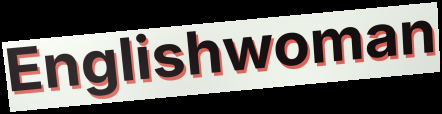
Englishwoman